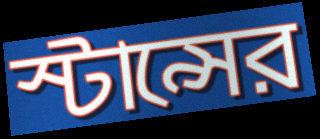
স্টান্সের